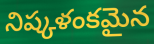
నిష్కళంకమైన